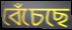
বেঁচেছে